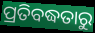
ପ୍ରତିବଦ୍ଧତାରୁ